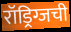
रॉड्रिग्जची